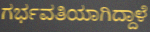
ಗರ್ಭವತಿಯಾಗಿದ್ದಾಳೆ